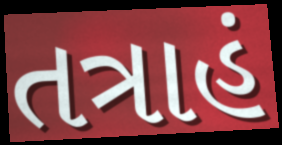
તત્રાહં